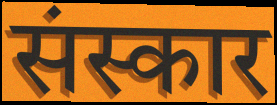
संस्कार